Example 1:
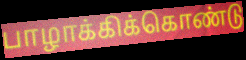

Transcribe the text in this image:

பாழாக்கிக்கொண்டு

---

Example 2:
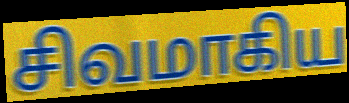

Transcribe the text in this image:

சிவமாகிய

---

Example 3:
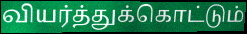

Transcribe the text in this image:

வியர்த்துக்கொட்டும்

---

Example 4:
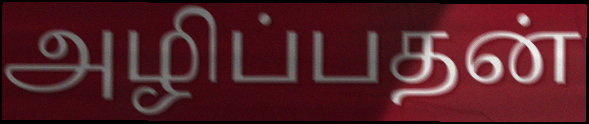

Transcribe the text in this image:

அழிப்பதன்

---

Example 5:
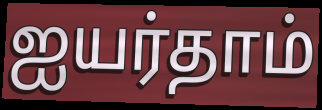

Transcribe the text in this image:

ஐயர்தாம்